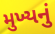
મુખ્યનું